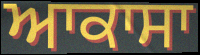
ਆਕਾਸਾ